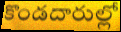
కొండదారుల్లో